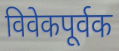
विवेकपूर्वक